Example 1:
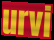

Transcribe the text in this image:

urvi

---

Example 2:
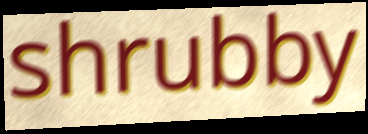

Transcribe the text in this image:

shrubby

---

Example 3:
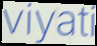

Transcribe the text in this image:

viyati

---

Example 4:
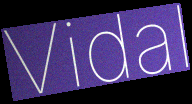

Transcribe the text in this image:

Vidal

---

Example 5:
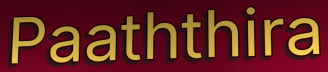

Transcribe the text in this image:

Paaththira